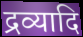
द्रव्यादि